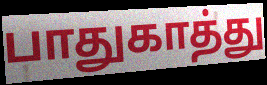
பாதுகாத்து